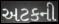
અટકની